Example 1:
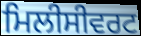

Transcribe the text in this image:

ਮਿਲੀਸੀਵਰਟ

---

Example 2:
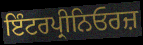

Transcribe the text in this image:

ਇੰਟਰਪ੍ਰੀਨਿਓਰਜ਼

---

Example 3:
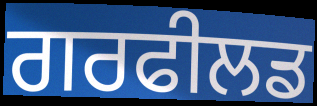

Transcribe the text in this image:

ਗਰਫੀਲਡ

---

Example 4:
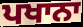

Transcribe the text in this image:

ਪਖਾਨਾ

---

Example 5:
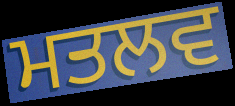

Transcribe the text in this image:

ਮਤਲਵ